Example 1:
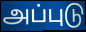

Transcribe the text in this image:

அப்புடு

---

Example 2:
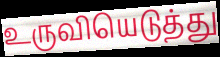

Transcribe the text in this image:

உருவியெடுத்து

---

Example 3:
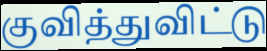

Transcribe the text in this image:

குவித்துவிட்டு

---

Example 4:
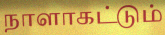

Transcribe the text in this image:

நாளாகட்டும்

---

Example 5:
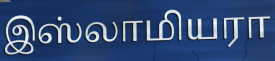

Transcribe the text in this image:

இஸ்லாமியரா